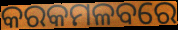
କରକମଳବରେ